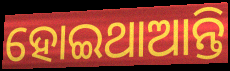
ହୋଇଥାଆନ୍ତି